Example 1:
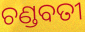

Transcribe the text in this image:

ଚଣ୍ଡବତୀ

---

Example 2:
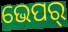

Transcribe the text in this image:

ଭେପର୍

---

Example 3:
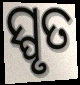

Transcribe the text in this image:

ସ୍ପୃତ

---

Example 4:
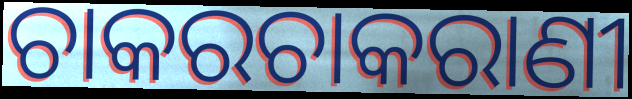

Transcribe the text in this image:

ଚାକରଚାକରାଣୀ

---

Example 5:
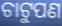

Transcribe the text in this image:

ଚାଟୁପଣ